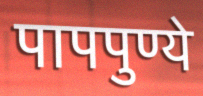
पापपुण्ये